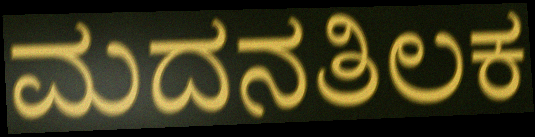
ಮದನತಿಲಕ